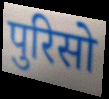
पुरिसो